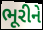
ભૂરીને